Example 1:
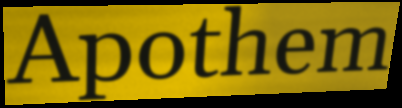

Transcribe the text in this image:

Apothem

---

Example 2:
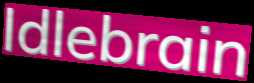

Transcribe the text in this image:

Idlebrain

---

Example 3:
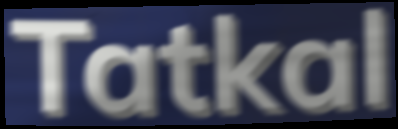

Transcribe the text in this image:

Tatkal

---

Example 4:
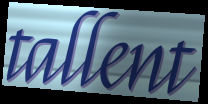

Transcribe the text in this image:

tallent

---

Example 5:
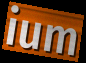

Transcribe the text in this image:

ium